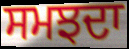
ਸਮਝਦਾ